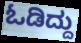
ಓಡಿದ್ದು